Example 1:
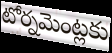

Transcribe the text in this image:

టోర్నమెంట్లకు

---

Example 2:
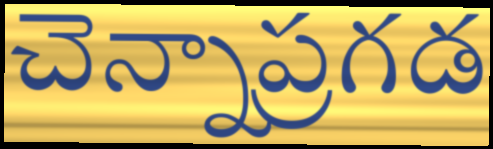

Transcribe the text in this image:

చెన్నాప్రగడ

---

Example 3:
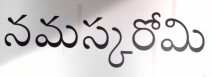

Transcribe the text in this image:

నమస్కరోమి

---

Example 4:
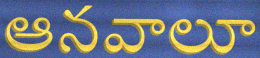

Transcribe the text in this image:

ఆనవాలూ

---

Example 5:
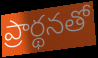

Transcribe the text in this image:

ప్రార్థనతో